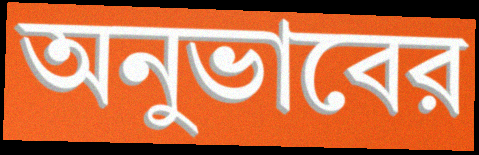
অনুভাবের